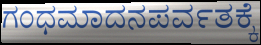
ಗಂಧಮಾದನಪರ್ವತಕ್ಕೆ